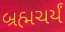
બ્રહ્મચર્યં